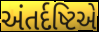
અંતર્દષ્ટિએ